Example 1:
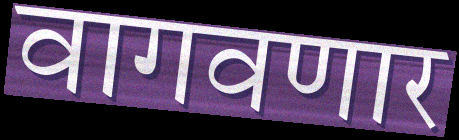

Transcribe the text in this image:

वागवणार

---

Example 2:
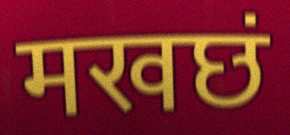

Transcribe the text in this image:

मखछं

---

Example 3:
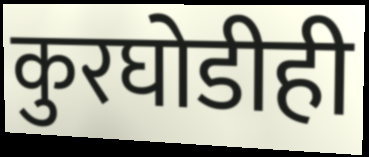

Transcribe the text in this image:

कुरघोडीही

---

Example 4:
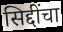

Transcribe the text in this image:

सिद्दींचा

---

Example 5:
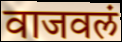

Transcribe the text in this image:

वाजवलं